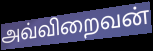
அவ்விறைவன்